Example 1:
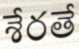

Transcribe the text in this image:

శేరతే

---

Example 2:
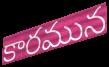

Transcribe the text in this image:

కారమున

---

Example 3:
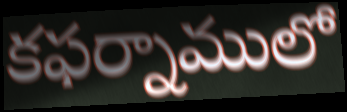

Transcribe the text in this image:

కఫర్నాములో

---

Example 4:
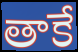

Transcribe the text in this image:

తాకే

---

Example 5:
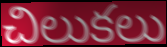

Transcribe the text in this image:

చిలుకలు